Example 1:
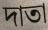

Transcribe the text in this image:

দাতা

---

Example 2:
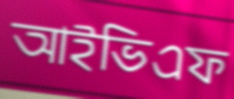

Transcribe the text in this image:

আইভিএফ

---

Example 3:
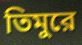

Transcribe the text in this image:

তিমুরে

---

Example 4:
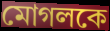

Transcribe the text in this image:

মোগলকে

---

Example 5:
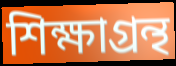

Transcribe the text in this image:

শিক্ষাগ্রন্থ